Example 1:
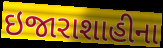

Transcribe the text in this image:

ઇજારાશાહીના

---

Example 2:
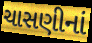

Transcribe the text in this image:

ચાસણીનાં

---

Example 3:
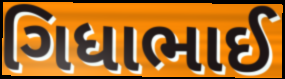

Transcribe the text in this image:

ગિધાભાઈ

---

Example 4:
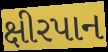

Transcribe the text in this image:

ક્ષીરપાન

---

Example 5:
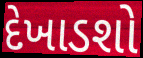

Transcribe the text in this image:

દેખાડશો